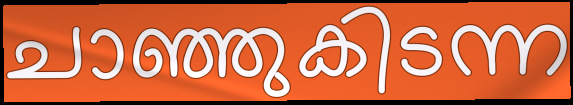
ചാഞ്ഞുകിടന്ന